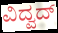
ವಿದ್ವದ್